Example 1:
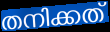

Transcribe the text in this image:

തനിക്കത്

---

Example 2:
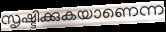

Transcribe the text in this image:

സൃഷ്ടിക്കുകയാണെന്ന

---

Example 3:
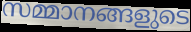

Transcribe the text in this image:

സമ്മാനങ്ങളുടെ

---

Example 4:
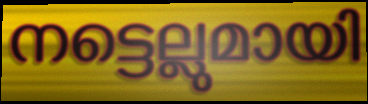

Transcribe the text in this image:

നട്ടെല്ലുമായി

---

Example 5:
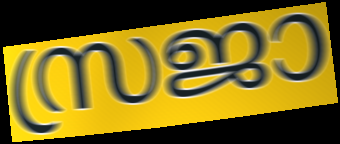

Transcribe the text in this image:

സ്രജാ